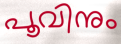
പൂവിനും